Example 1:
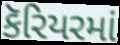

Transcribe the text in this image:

કૅરિયરમાં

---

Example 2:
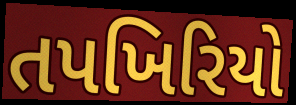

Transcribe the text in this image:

તપખિરિયો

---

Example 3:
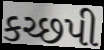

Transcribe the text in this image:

કચ્છપી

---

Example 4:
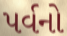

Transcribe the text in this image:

પર્વનો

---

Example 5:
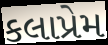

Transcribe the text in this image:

કલાપ્રેમ